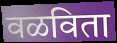
वळविता